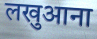
लखुआना